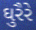
ઘુરૈરે